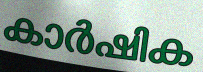
കാർഷിക